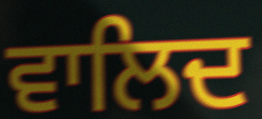
ਵਾਲਿਦ